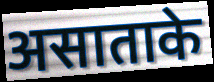
असाताके